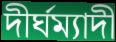
দীৰ্ঘম্যাদী